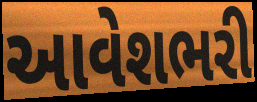
આવેશભરી